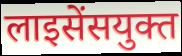
लाइसेंसयुक्त